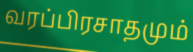
வரப்பிரசாதமும்